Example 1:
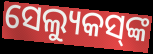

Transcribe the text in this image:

ସେଲ୍ୟୁକସ୍‌ଙ୍କ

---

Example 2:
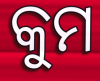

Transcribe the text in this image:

କୁମ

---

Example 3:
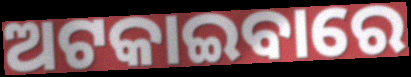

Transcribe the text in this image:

ଅଟକାଇବାରେ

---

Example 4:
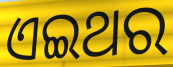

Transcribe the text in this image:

ଏଇଥର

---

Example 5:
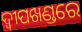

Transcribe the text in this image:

ଦ୍ଵୀପଖଣ୍ଡରେ